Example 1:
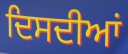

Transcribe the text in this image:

ਦਿਸਦੀਆਂ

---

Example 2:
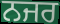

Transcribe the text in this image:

ਨਜਰ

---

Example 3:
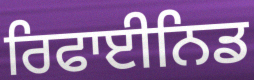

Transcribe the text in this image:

ਰਿਫਾਈਨਿਡ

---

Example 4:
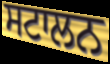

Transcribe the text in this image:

ਸਟਾਲਨ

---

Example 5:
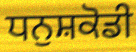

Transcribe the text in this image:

ਧਨੁਸ਼ਕੋਡੀ